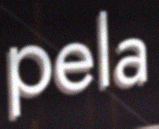
pela